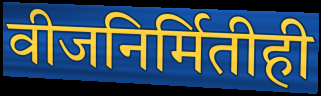
वीजनिर्मितीही